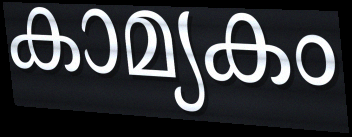
കാമ്യകം